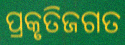
ପ୍ରକୃତିଜଗତ